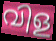
വിള